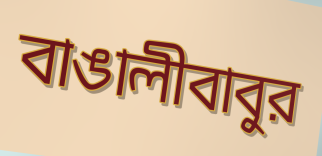
বাঙালীবাবুর